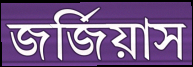
জর্জিয়াস